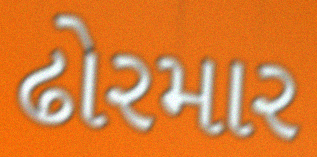
ઢોરમાર